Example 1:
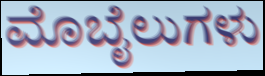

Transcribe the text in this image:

ಮೊಬೈಲುಗಳು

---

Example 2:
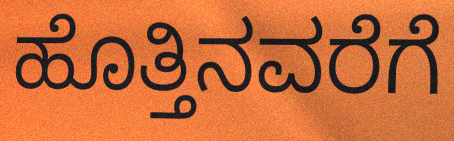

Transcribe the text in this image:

ಹೊತ್ತಿನವರೆಗೆ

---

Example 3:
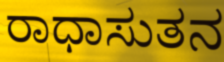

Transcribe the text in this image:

ರಾಧಾಸುತನ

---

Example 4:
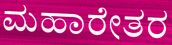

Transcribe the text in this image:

ಮಹಾರೇತರ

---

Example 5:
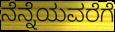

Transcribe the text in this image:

ನೆನ್ನೆಯವರೆಗೆ